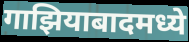
गाझियाबादमध्ये